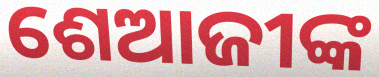
ଶେଆଜୀଙ୍କ